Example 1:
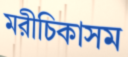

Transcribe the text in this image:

মরীচিকাসম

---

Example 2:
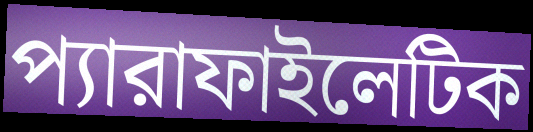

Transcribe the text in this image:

প্যারাফাইলেটিক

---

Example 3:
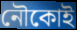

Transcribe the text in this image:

নৌকোই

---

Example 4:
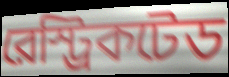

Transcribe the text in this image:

রেস্ট্রিকটেড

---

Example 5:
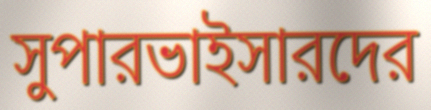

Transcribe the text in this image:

সুপারভাইসারদের